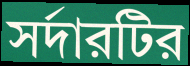
সর্দারটির